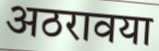
अठरावया